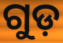
ଗୁଡ଼